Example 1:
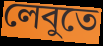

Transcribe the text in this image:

লেবুতে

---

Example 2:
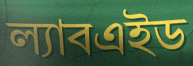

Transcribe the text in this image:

ল্যাবএইড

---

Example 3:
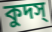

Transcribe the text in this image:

কুদস্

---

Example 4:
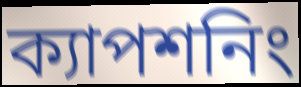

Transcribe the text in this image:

ক্যাপশনিং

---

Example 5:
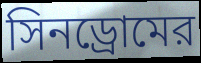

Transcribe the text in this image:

সিনড্রোমের